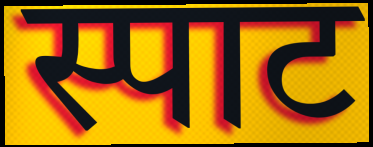
स्पाट